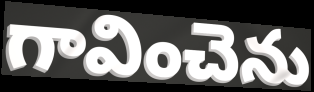
గావించెను